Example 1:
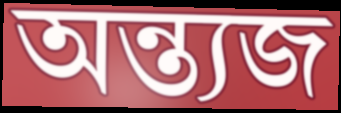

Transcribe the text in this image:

অন্ত্যজ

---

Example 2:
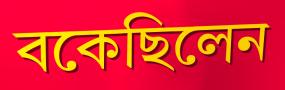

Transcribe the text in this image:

বকেছিলেন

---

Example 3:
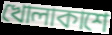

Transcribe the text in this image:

খোলাকাশে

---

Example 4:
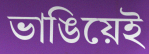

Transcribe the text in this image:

ভাঙিয়েই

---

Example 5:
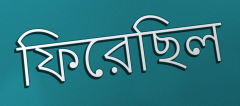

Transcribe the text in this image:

ফিরেছিল